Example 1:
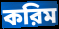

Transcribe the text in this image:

করিম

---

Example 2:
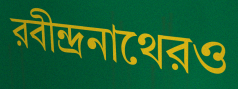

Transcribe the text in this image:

রবীন্দ্রনাথেরও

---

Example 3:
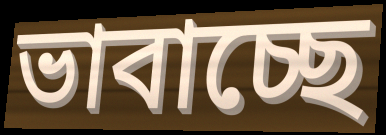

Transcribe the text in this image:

ভাবাচ্ছে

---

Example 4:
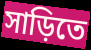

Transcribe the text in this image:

সাড়িতে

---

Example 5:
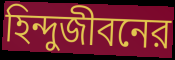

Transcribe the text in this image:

হিন্দুজীবনের